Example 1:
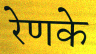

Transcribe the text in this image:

रेणके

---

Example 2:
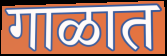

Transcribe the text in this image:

गाळात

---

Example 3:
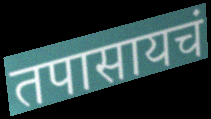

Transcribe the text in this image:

तपासायचं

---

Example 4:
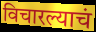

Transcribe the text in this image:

विचारल्याचं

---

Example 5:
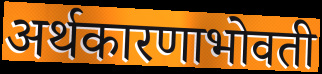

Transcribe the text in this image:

अर्थकारणाभोवती